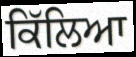
ਕਿੱਲਿਆ